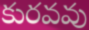
కురవవు